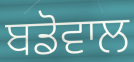
ਬਡੋਵਾਲ